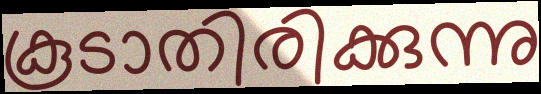
കൂടാതിരിക്കുന്നു